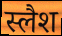
स्लैश